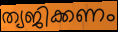
ത്യജിക്കണം